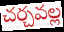
చర్చవల్ల